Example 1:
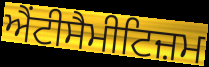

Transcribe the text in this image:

ਐਂਟੀਸੈਮੀਟਿਜ਼ਮ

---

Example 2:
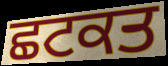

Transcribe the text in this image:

ਛਟਕਤ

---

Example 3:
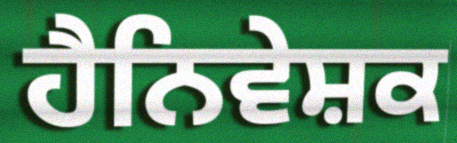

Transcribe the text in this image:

ਹੈਨਿਵੇਸ਼ਕ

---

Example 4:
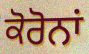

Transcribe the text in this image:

ਕੋਰੋਨਾਂ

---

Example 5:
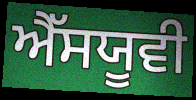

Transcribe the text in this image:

ਐੱਸਯੂਵੀ